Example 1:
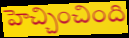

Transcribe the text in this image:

హెచ్చించింది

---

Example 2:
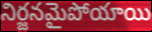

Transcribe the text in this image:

నిర్జనమైపోయాయి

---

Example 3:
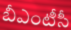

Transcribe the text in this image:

బీఎంటీసీ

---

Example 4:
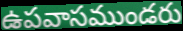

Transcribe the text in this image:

ఉపవాసముండరు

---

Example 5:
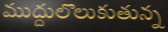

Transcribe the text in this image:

ముద్దులొలుకుతున్న